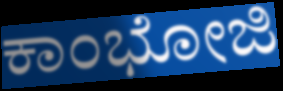
ಕಾಂಭೋಜಿ